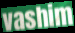
vashim